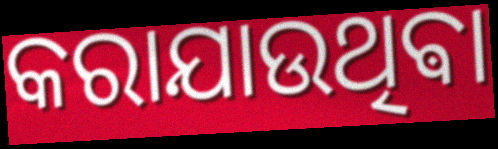
କରାଯାଉଥିଵା